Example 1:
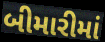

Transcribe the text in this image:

બીમારીમાં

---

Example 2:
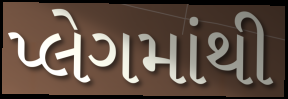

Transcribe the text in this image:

પ્લેગમાંથી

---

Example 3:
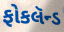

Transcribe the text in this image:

ફોકલૅન્ડ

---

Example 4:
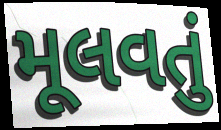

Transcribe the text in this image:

મૂલવતું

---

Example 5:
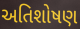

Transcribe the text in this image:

અતિશોષણ